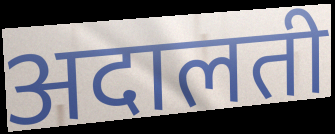
अदालती